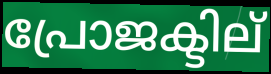
പ്രോജക്ടില്